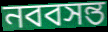
নববসন্ত